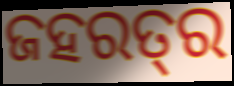
ଜହରତ୍‌ର